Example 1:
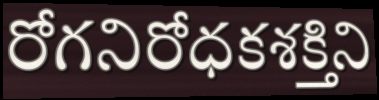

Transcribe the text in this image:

రోగనిరోధకశక్తిని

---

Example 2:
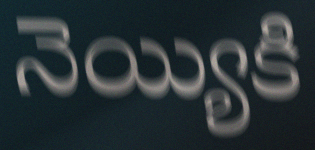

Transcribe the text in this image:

నెయ్యికి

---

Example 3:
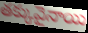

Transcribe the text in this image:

తక్కువైనాయి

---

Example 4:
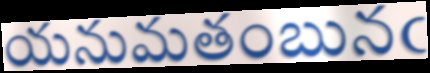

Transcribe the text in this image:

యనుమతంబునఁ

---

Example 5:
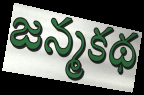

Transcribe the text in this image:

జన్మకథ